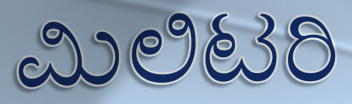
ಮಿಲಿಟರಿ